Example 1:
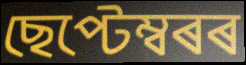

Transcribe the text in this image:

ছেপ্টেম্বৰৰ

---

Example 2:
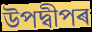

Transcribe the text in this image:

উপদ্বীপৰ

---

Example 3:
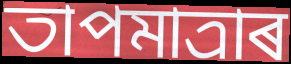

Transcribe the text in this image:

তাপমাত্ৰাৰ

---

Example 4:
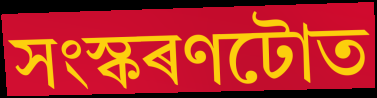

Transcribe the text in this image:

সংস্কৰণটোত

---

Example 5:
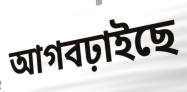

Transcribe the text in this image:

আগবঢ়াইছে